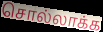
சொல்லாக்க